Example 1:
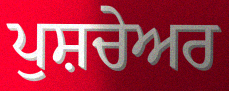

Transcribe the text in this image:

ਪੁਸ਼ਚੇਅਰ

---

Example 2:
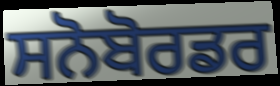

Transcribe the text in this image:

ਸਨੋਬੋਰਡਰ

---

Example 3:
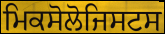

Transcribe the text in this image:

ਮਿਕਸੋਲੋਜਿਸਟਸ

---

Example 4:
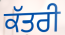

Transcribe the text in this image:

ਕੱਤਰੀ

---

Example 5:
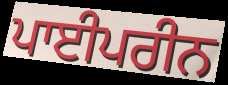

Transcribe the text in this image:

ਪਾਈਪਰੀਨ